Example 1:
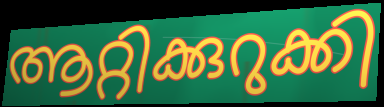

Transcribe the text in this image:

ആറ്റിക്കുറുക്കി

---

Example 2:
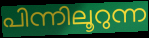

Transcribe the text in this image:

പിന്നിലൂറുന്ന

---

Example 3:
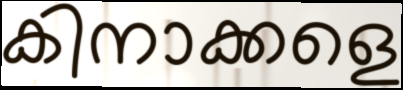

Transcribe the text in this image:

കിനാക്കളെ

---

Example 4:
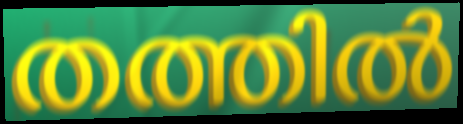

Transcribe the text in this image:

തത്തിൽ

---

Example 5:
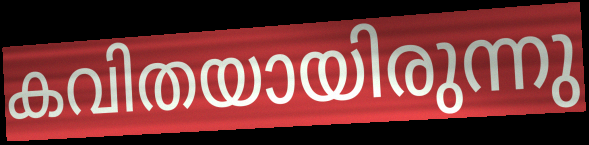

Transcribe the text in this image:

കവിതയായിരുന്നു